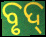
ବୃଦ୍